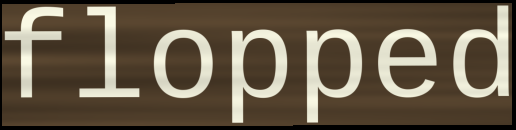
flopped